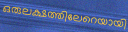
ഒരുലക്ഷത്തിലേറെയായി